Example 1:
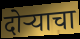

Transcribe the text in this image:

दोर्‍याचा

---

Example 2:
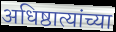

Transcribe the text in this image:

अधिष्ठात्यांच्या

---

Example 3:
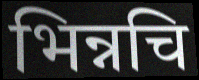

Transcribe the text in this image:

भिन्नचि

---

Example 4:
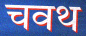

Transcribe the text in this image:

चवथ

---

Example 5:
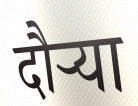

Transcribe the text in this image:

दौऱ्या